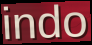
indo